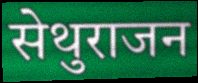
सेथुराजन